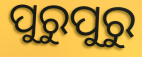
ପୁରୁପୁରୁ